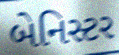
બેનિસ્ટર